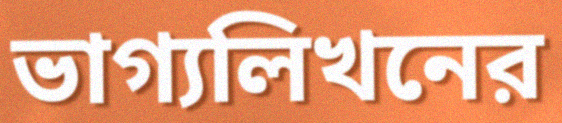
ভাগ্যলিখনের